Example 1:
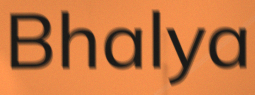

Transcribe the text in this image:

Bhalya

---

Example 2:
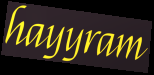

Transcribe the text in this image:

hayyram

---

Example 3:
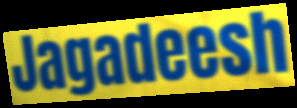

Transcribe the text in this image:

Jagadeesh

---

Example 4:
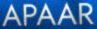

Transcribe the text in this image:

APAAR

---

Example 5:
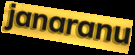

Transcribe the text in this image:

janaranu